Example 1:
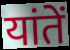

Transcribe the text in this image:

यांतें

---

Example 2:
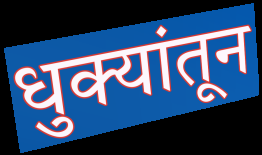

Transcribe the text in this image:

धुक्यांतून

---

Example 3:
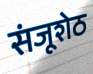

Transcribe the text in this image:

संजूशेठ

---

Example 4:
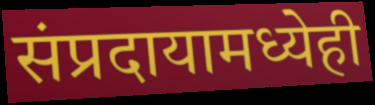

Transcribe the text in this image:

संप्रदायामध्येही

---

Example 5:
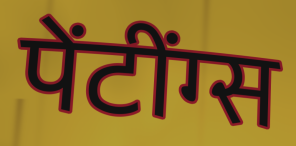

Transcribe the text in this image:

पेंटींग्स